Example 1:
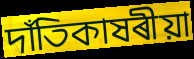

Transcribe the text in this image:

দাঁতিকাষৰীয়া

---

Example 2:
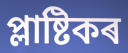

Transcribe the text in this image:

প্লাষ্টিকৰ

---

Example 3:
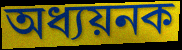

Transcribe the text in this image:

অধ্যয়নক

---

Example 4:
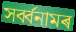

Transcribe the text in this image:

সৰ্ব্বনামৰ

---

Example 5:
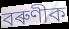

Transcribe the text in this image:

বৰুণীক